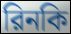
রিনকি